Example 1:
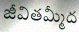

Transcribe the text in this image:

జీవితమ్మీద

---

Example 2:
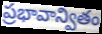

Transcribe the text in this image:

ప్రభావాన్వితం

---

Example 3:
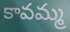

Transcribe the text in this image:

కావమ్మ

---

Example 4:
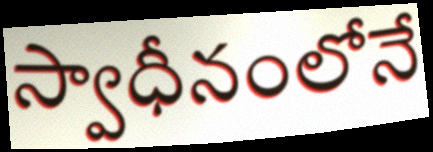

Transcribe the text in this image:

స్వాధీనంలోనే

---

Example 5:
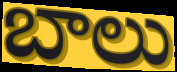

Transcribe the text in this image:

బాలు